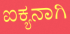
ಐಕ್ಯನಾಗಿ